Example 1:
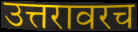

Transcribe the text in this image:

उत्तरावरच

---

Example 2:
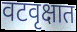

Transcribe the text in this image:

वटवृक्षात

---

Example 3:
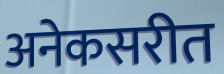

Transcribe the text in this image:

अनेकसरीत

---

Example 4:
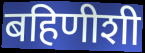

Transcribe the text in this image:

बहिणीशी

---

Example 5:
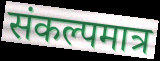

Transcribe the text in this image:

संकल्पमात्र